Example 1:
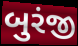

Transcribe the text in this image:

બુરંજી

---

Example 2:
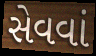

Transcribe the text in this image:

સેવવાં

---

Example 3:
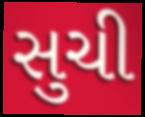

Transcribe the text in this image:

સુચી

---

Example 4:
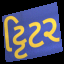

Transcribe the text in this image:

ટ્ટિટર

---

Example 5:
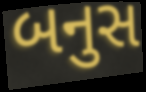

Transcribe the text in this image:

બનુસ